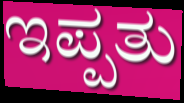
ಇಪ್ಪತು